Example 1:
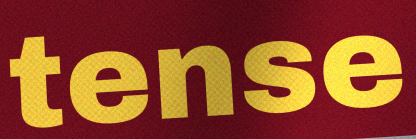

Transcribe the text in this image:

tense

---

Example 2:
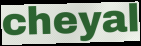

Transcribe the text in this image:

cheyal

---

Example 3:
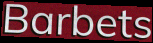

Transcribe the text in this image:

Barbets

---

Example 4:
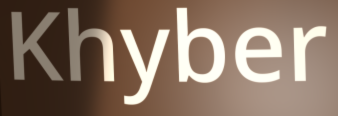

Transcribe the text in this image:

Khyber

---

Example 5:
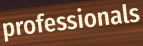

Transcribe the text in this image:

professionals